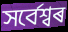
সৰ্বেশ্বৰ